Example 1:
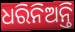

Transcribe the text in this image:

ଧରିନିଅନ୍ତି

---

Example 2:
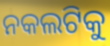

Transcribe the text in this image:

ନକଲଟିକୁ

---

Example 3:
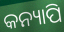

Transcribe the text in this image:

କନ୍ୟାପି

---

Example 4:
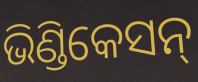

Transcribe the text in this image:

ଭିଣ୍ଡିକେସନ୍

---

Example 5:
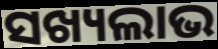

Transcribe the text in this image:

ସଖ୍ୟଲାଭ